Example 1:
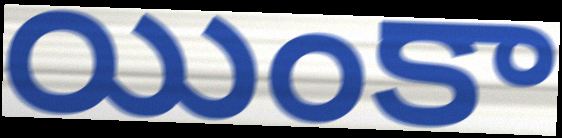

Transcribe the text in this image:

యింకా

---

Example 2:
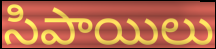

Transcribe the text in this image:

సిపాయిలు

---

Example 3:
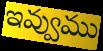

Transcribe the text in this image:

ఇవ్వుము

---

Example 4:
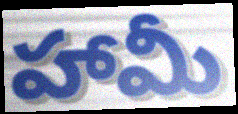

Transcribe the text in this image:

హామీ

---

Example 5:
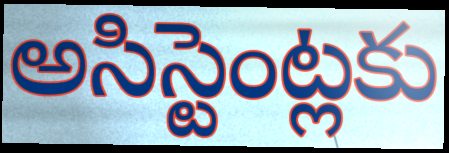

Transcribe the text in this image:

అసిస్టెంట్లకు